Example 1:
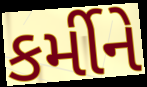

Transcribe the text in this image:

કર્મીને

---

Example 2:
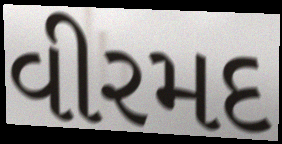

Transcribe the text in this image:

વીરમદ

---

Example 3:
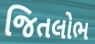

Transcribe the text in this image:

જિતલોભ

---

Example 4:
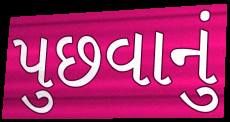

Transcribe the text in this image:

પુછવાનું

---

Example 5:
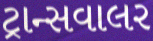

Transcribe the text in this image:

ટ્રાન્સવાલર